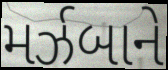
મર્ઝબાને